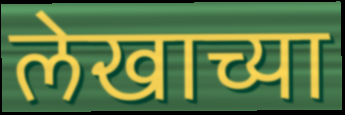
लेखाच्या